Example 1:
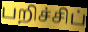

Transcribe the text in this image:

பறிச்சிப்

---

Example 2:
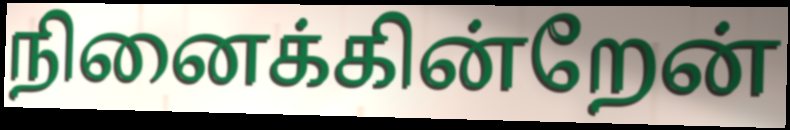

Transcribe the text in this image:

நினைக்கின்றேன்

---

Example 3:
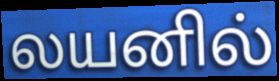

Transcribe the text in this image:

லயனில்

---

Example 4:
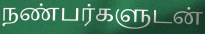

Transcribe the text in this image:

நண்பர்களுடன்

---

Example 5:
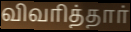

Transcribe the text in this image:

விவரித்தார்